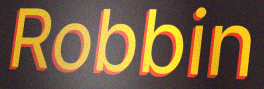
Robbin